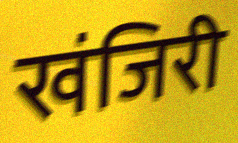
खंजिरी